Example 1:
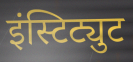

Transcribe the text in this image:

इंस्टिट्युट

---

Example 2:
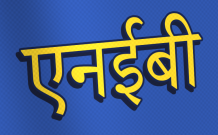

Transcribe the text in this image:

एनईबी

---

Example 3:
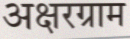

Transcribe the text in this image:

अक्षरग्राम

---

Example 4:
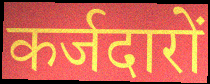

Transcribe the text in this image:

कर्जदारों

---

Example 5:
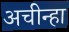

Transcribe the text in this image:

अचीन्हा